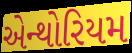
એન્થોરિયમ